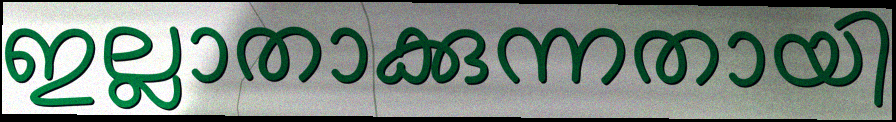
ഇല്ലാതാക്കുന്നതായി